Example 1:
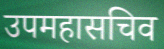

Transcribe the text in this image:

उपमहासचिव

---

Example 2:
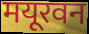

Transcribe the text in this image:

मयूरवन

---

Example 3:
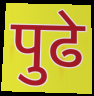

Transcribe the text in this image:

पुढे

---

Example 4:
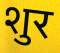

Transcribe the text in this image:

शुर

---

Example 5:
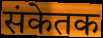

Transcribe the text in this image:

संकेतक